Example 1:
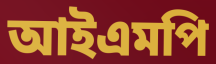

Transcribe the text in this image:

আইএমপি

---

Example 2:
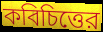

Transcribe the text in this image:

কবিচিত্তের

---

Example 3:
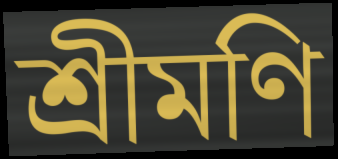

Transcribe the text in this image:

শ্রীমণি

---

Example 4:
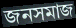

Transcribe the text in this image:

জনসমাজ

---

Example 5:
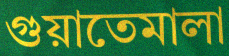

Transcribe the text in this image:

গুয়াতেমালা